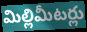
మిల్లిమీటర్లు